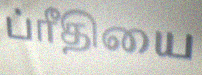
ப்ரீதியை